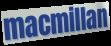
macmillan